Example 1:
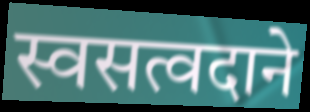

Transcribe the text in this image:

स्वसत्वदाने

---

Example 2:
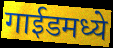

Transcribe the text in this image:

गाईडमध्ये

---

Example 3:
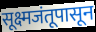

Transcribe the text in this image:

सूक्ष्मजंतूपासून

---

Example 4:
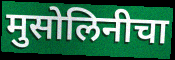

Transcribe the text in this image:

मुसोलिनीचा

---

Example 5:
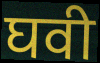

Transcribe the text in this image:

घवी